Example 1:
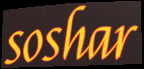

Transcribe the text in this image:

soshar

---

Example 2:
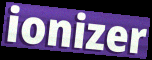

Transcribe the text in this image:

ionizer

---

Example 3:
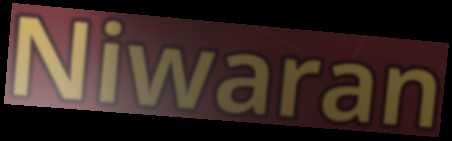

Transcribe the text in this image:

Niwaran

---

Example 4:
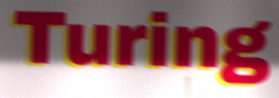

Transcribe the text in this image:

Turing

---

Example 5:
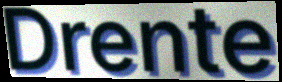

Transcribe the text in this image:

Drente